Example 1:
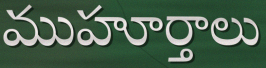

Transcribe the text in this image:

ముహూర్తాలు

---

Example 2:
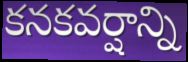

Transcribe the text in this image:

కనకవర్షాన్ని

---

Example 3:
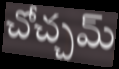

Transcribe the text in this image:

చోచ్చమ్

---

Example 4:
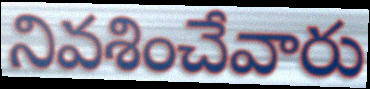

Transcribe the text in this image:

నివశించేవారు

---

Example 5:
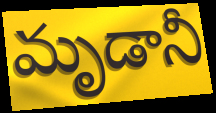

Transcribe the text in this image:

మృడానీ